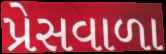
પ્રેસવાળા